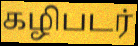
கழிபடர்